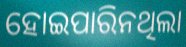
ହୋଇପାରିନଥିଲା